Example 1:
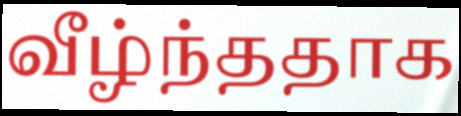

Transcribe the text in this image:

வீழ்ந்ததாக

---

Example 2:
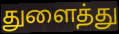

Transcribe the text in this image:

துளைத்து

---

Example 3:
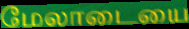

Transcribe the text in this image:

மேலாடையை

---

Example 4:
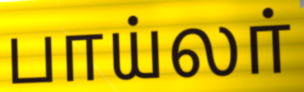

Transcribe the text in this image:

பாய்லர்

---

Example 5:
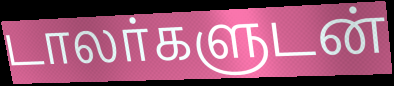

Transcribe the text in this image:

டாலர்களுடன்